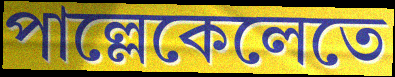
পাল্লেকেলেতে